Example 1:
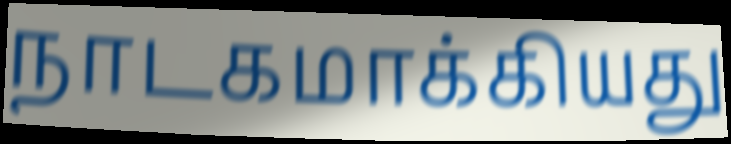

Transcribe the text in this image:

நாடகமாக்கியது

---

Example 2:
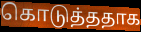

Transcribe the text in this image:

கொடுத்ததாக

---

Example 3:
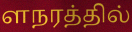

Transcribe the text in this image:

ளநரத்தில்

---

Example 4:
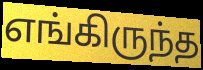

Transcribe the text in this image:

எங்கிருந்த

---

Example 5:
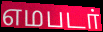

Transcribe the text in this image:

எமபடர்